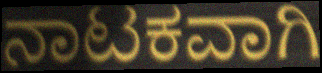
ನಾಟಕವಾಗಿ